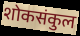
शोकसंकुल